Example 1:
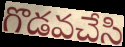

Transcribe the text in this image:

గొడవచేసి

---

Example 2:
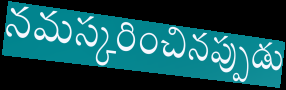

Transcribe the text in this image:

నమస్కరించినప్పుడు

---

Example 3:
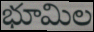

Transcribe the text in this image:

భూమిల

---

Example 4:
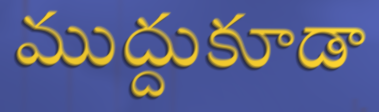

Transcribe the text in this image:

ముద్దుకూడా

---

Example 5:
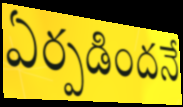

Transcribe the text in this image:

ఏర్పడిందనే